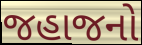
જહાજનો